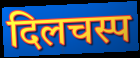
दिलचस्प